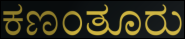
ಕಣಂತೂರು